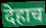
देहाच